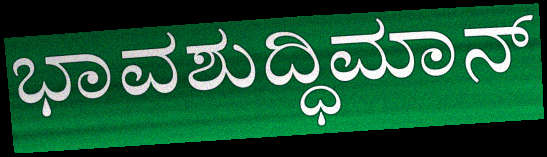
ಭಾವಶುದ್ಧಿಮಾನ್